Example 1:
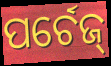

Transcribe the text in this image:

ପର୍ଚେଜ୍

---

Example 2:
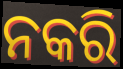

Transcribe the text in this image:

ନକରି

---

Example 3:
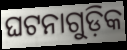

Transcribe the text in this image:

ଘଟନାଗୁଡ଼ିକ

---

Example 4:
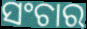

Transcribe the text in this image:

ସଂଚାର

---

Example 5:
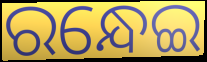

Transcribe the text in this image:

ରନ୍ଧେଇ